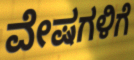
ವೇಷಗಳಿಗೆ